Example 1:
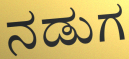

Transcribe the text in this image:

ನಡುಗ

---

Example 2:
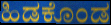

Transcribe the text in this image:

ಹಿಡಕೊಂಡ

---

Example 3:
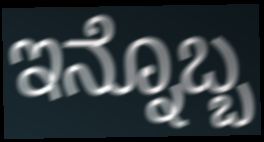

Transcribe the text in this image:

ಇನ್ನೊಬ್ಬ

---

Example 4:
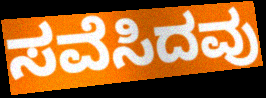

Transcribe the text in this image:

ಸವೆಸಿದವು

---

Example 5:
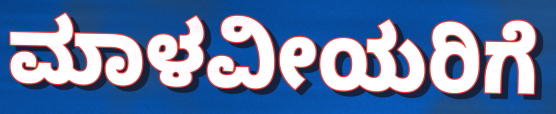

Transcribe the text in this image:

ಮಾಳವೀಯರಿಗೆ